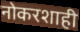
नोकरशाही